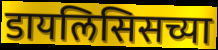
डायलिसिसच्या